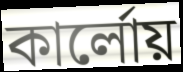
কার্লোয়